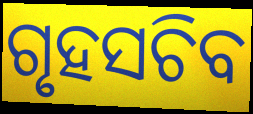
ଗୃହସଚିବ